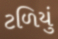
ટળિયું